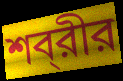
শব্‌রীর